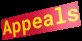
Appeals